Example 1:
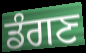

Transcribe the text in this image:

ਡੰਗਣ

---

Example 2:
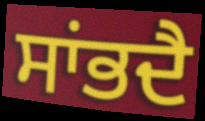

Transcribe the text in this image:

ਸਾਂਭਦੈ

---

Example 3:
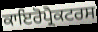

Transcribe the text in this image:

ਕਾਇਰੋਪ੍ਰੈਕਟਰਸ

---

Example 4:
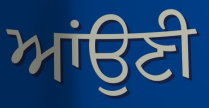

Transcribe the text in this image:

ਆਂਉਣੀ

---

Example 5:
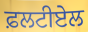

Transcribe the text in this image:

ਫ਼ਲਟੀਏਲ